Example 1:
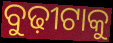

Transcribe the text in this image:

ବୁଢ଼ୀଟାକୁ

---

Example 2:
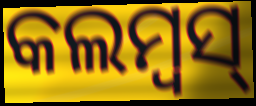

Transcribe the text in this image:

କଲମ୍ବସ୍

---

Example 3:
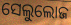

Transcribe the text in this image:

ସେଲୁଲୋଜ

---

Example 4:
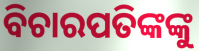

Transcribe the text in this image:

ବିଚାରପତିଙ୍କଙ୍କୁ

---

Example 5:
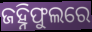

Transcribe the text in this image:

ଜହ୍ନିଫୁଲରେ